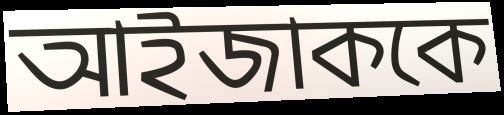
আইজাককে